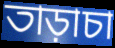
তাড়াচা